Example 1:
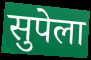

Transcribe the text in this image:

सुपेला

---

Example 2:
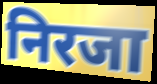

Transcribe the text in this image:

निरजा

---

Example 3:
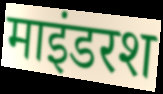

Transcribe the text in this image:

माइंडरश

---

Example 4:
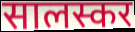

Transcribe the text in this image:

सालस्कर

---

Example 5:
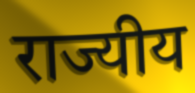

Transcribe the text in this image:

राज्यीय